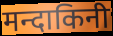
मन्दाकिनी